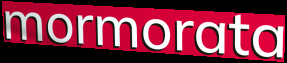
mormorata